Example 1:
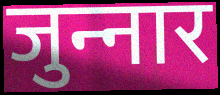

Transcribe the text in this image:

जुन्नार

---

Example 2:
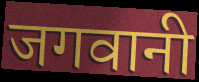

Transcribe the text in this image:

जगवानी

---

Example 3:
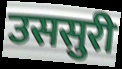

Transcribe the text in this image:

उससुरी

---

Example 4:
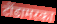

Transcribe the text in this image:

टोंडामरका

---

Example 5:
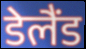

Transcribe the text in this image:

डेलैंड